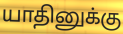
யாதினுக்கு